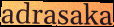
adrasaka